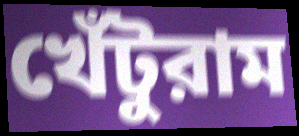
খেঁটুরাম